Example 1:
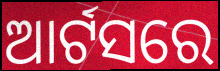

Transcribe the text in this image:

ଆର୍ଟସରେ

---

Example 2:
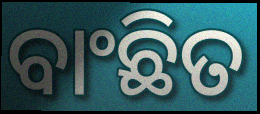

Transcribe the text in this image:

ବାଂଛିତ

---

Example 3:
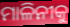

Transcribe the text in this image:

ମାଳିନୀକୁ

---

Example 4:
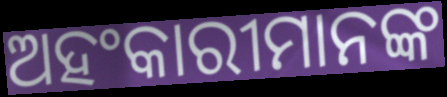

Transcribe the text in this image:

ଅହଂକାରୀମାନଙ୍କ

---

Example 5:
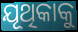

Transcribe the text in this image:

ଯୂଥିକାକୁ